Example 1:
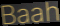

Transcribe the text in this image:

Baah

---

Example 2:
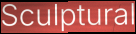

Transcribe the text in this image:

Sculptural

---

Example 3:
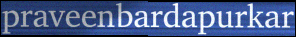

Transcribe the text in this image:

praveenbardapurkar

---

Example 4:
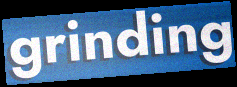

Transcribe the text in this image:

grinding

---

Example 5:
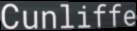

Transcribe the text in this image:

Cunliffe